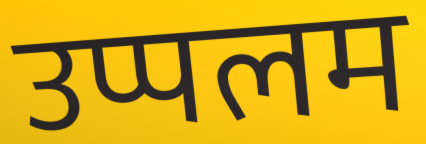
उप्पलम